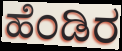
ಹೆಂಡಿರ